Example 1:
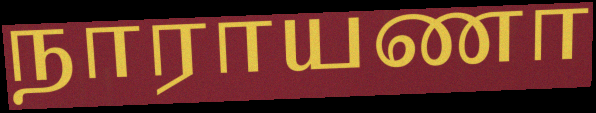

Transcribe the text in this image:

நாராயணா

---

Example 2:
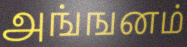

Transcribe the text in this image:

அங்ஙனம்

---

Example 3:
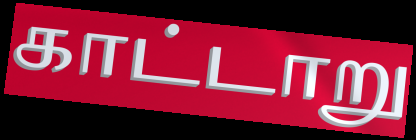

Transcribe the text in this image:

காட்டாறு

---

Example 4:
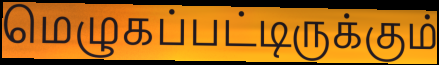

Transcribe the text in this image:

மெழுகப்பட்டிருக்கும்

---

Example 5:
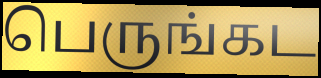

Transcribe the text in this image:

பெருங்கட